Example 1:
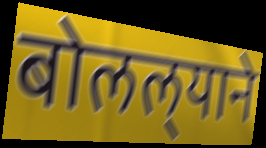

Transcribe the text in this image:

बोलल्याने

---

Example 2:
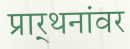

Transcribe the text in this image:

प्रार्थनांवर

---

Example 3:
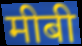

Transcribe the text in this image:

मीबी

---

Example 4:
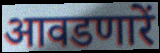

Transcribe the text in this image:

आवडणारें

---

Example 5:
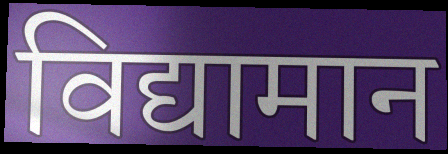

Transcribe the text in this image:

विद्यामान